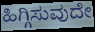
ಹಿಗ್ಗಿಸುವುದೇ